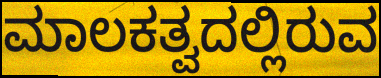
ಮಾಲಕತ್ವದಲ್ಲಿರುವ